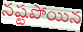
నష్టపోయిన